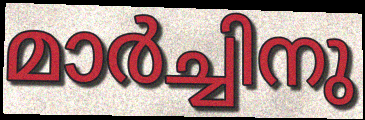
മാർച്ചിനു